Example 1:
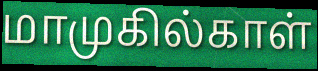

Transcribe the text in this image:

மாமுகில்காள்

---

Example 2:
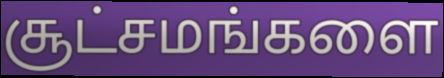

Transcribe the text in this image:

சூட்சமங்களை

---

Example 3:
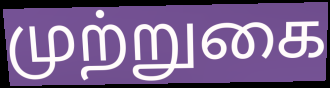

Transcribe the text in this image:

முற்றுகை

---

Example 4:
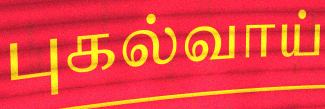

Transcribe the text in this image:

புகல்வாய்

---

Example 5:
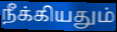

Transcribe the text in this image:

நீக்கியதும்